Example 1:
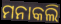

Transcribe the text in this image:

ମନାକଲି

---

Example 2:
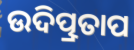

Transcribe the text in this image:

ଉଦିତ୍ପ୍ରତାପ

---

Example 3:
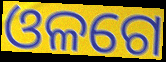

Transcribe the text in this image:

ଓଳଗେ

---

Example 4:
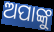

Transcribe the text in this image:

ଅପାଙ୍କୁ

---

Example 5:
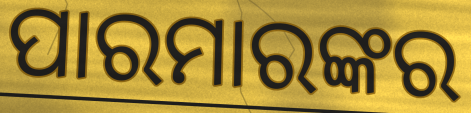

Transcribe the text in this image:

ପାରମାରଙ୍କର